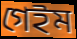
গেইম